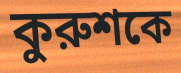
কুরুশকে